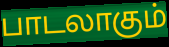
பாடலாகும்